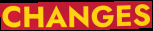
CHANGES